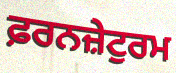
ਫ਼ਰਨਜ਼ੇਟੁਰਮ